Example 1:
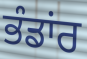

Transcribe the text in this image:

ਭੰਡਾਂਰ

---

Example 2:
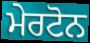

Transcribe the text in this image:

ਮੇਰਟੋਨ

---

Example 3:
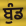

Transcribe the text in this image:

ਬੁੰਡ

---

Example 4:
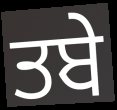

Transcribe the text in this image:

ਤਬੇ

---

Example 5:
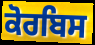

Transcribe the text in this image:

ਕੋਰਬਿਸ